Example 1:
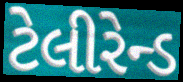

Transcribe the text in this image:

ટેલીરેન્ડ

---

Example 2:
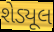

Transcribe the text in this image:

શેડ્યૂલ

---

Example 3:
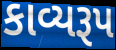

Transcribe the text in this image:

કાવ્યરૂપ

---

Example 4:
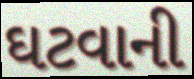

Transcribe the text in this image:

ઘટવાની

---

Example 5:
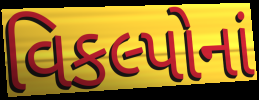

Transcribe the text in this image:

વિકલ્પોનાં